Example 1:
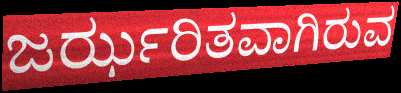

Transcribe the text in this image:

ಜರ್ಝರಿತವಾಗಿರುವ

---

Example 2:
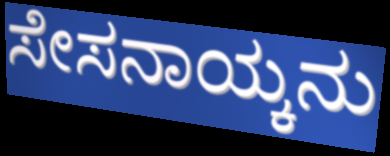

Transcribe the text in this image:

ಸೇಸನಾಯ್ಕನು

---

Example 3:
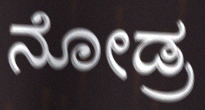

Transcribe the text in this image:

ನೋಡ್ರ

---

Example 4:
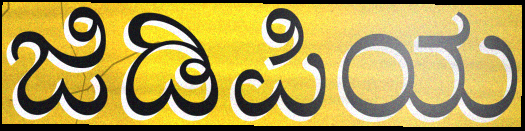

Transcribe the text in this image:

ಜಿಡಿಪಿಯ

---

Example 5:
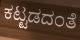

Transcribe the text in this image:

ಕಟ್ಟಡದಂತೆ